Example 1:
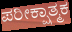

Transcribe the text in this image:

ಪರೀಕ್ಷಾತ್ಮಕ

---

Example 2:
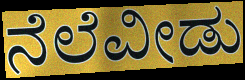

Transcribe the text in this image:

ನೆಲೆವೀಡು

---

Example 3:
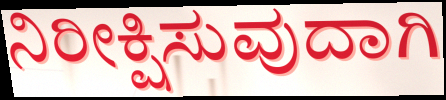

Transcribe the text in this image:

ನಿರೀಕ್ಷಿಸುವುದಾಗಿ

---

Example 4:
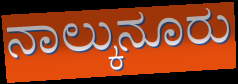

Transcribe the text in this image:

ನಾಲ್ಕುನೂರು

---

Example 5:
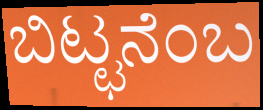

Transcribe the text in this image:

ಬಿಟ್ಟನೆಂಬ